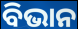
ବିଭାନ